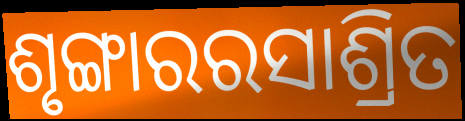
ଶୃଙ୍ଗାରରସାଶ୍ରିତ